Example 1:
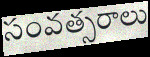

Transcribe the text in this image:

సంవత్సరాలు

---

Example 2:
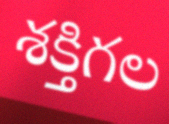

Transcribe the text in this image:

శక్తిగల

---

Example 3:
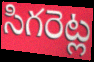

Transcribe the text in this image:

సిగరెట్ల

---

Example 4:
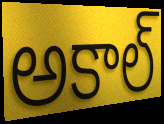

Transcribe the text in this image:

అకాల్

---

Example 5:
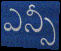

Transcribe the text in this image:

ఎన్సీ